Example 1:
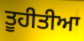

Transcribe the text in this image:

ਤੂਹੀਤੀਆ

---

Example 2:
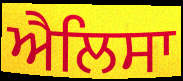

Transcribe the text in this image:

ਐਲਿਸਾ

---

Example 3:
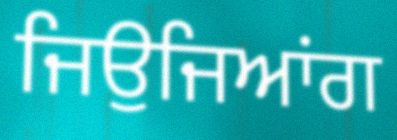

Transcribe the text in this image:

ਜਿਉਜਿਆਂਗ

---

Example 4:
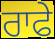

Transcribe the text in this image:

ਰਾਫੇ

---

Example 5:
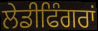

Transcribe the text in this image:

ਲੇਡੀਫਿੰਗਰਾਂ